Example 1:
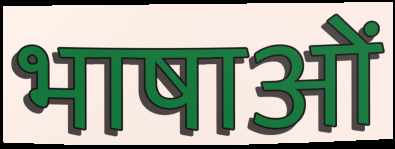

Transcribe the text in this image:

भाषाओें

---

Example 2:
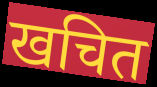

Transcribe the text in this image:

खचित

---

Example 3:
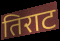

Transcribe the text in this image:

तिराट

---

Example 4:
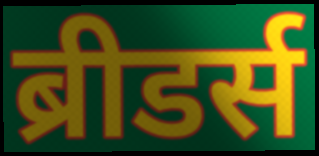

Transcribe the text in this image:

ब्रीडर्स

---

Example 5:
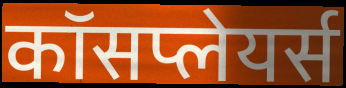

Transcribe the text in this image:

कॉसप्लेयर्स